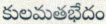
కులమతభేదం